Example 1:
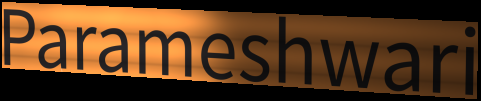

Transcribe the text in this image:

Parameshwari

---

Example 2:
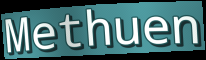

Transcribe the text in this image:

Methuen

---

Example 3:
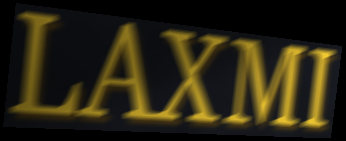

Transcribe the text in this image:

LAXMI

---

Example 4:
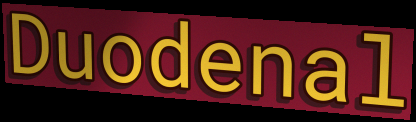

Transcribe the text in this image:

Duodenal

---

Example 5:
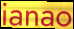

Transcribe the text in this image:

ianao